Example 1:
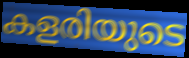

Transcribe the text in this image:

കളരിയുടെ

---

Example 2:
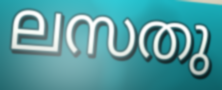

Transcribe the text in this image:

ലസതു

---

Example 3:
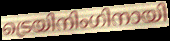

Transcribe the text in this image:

ട്രെയിനിംഗിനായി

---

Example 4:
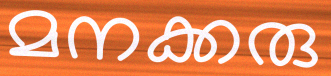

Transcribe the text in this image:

മനക്കരു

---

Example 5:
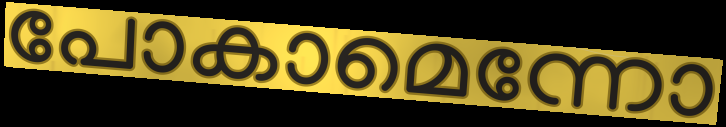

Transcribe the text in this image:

പോകാമെന്നോ